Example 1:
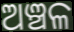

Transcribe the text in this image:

ଅଞ୍ଚଳ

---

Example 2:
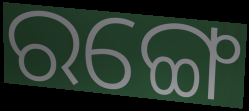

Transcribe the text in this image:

ରଙ୍ଗେ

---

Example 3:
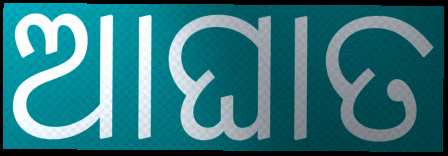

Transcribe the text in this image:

ଆଘାତ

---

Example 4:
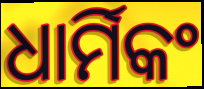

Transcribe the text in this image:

ଧାର୍ମିକଂ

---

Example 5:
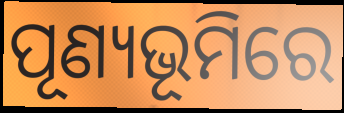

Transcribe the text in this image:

ପୂଣ୍ୟଭୂମିରେ